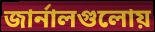
জার্নালগুলোয়